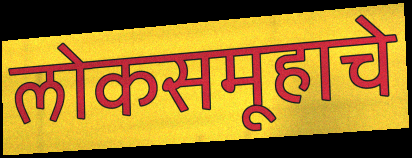
लोकसमूहाचे